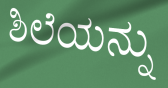
ಶಿಲೆಯನ್ನು